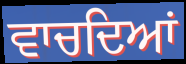
ਵਾਚਦਿਆਂ